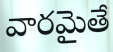
వారమైతే